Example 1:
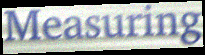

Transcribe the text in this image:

Measuring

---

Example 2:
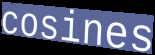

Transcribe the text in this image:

cosines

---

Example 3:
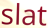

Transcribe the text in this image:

slat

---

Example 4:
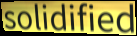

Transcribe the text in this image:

solidified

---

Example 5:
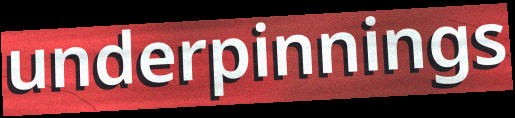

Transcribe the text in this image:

underpinnings